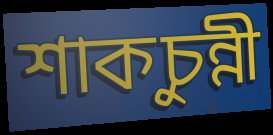
শাকচুন্নী